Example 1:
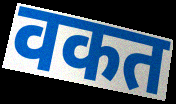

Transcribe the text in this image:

वकत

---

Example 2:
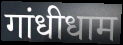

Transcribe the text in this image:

गांधीधाम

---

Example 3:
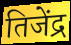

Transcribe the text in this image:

तिजेंद्र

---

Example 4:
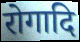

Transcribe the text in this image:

रोगादि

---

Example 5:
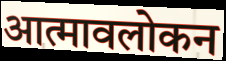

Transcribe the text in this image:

आत्‍मावलोकन